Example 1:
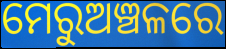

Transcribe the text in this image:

ମେରୁଅଞ୍ଚଳରେ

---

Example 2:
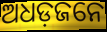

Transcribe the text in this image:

ଅଧଡ଼ଜନେ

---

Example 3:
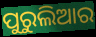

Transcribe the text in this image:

ପୁରୁଲିଆର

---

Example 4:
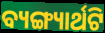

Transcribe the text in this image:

ବ୍ୟଙ୍ଗ୍ୟାର୍ଥଟି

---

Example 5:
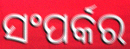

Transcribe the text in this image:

ସଂପର୍କର